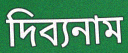
দিব্যনাম